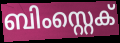
ബിംസ്റ്റെക്